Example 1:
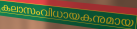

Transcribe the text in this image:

കലാസംവിധായകനുമായ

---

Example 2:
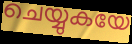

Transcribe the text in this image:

ചെയ്യുകയേ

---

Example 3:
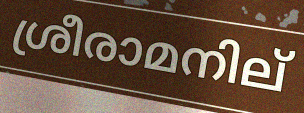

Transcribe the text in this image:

ശ്രീരാമനില്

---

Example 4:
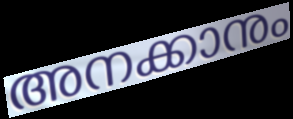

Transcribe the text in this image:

അനക്കാനും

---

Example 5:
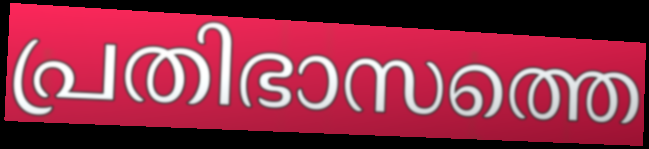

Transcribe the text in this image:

പ്രതിഭാസത്തെ